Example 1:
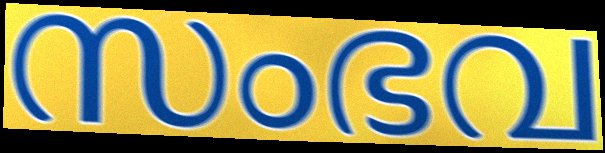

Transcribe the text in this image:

സംഭവ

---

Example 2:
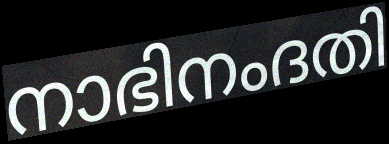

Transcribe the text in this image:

നാഭിനംദതി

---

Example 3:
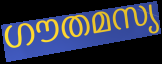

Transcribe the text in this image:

ഗൗതമസ്യ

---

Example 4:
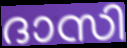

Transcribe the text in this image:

ദാസി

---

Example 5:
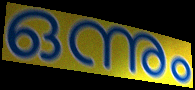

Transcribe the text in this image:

ഒന്നും